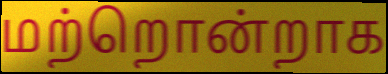
மற்றொன்றாக